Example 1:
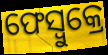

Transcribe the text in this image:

ଫେସ୍ବୁକ୍ରେ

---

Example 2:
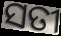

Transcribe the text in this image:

ସତୀ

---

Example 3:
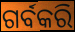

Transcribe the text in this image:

ଗର୍ବକରି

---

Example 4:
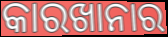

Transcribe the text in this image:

କାରଖାନାର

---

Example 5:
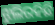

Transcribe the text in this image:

ଝୁଲିରହିଛି